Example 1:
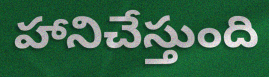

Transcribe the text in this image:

హానిచేస్తుంది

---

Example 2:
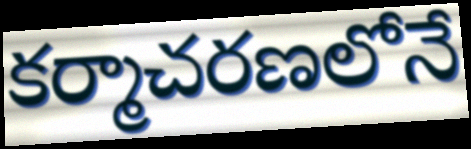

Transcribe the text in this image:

కర్మాచరణలోనే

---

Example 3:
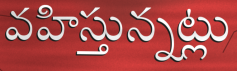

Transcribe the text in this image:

వహిస్తున్నట్లు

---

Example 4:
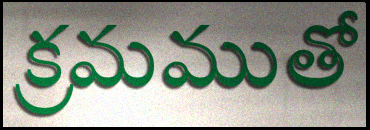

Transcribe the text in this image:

క్రమముతో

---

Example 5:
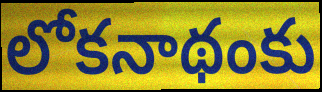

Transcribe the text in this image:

లోకనాథంకు